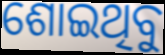
ଶୋଇଥିବୁ